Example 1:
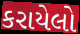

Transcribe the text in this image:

કરાયેલો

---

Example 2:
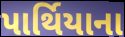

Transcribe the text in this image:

પાર્થિયાના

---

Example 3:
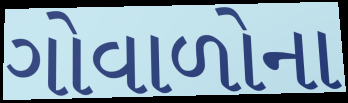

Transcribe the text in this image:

ગોવાળોના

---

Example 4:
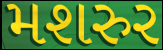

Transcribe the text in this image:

મશરુર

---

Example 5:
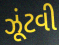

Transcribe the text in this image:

ઝૂંટવી